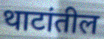
थाटांतील